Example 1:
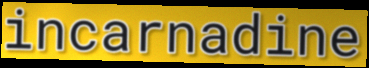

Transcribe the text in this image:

incarnadine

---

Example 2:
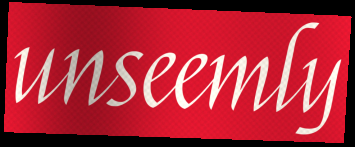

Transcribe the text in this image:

unseemly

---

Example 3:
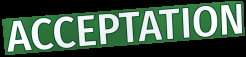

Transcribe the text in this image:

ACCEPTATION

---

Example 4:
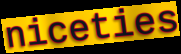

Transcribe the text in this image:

niceties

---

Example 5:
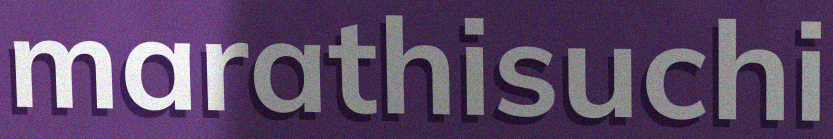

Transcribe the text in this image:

marathisuchi